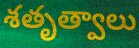
శతృత్వాలు